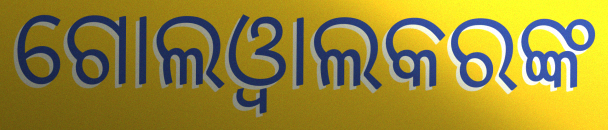
ଗୋଲଓ୍ଵାଲକରଙ୍କ